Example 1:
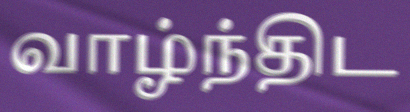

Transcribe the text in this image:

வாழ்ந்திட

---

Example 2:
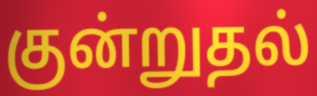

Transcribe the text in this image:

குன்றுதல்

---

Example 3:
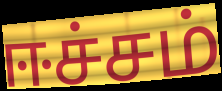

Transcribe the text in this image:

ஈச்சம்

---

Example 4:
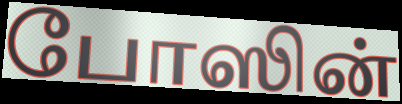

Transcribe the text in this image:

போஸின்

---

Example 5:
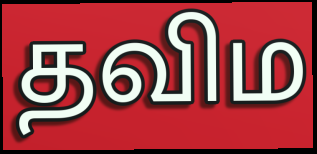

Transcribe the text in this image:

தவிம